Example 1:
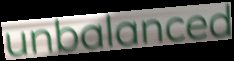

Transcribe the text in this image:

unbalanced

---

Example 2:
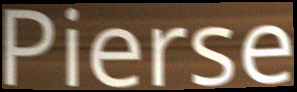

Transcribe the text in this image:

Pierse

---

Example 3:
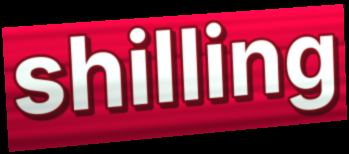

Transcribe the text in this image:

shilling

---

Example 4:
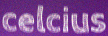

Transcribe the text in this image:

celcius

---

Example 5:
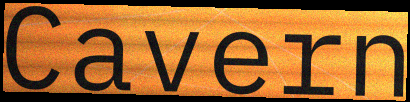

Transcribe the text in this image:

Cavern